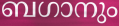
ബഗാനും